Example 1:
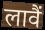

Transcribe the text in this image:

लावैं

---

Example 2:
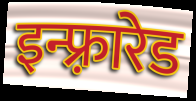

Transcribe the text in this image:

इन्फ़्रारेड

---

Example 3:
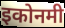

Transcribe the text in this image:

इकोनमी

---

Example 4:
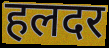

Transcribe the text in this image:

हलदर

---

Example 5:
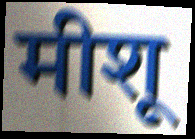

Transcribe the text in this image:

मीशू